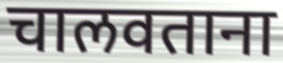
चालवताना